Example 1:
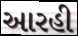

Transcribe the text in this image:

આરહી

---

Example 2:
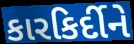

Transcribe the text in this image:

કારકિર્દીને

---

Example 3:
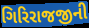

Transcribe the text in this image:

ગિરિરાજજીની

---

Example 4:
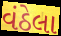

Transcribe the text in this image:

વંઠેલા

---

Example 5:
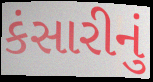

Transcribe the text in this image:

કંસારીનું